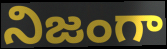
నిజంగా